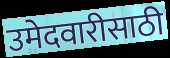
उमेदवारीसाठी